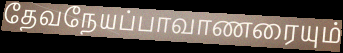
தேவநேயப்பாவாணரையும்